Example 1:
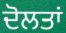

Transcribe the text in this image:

ਦੋਲਤਾਂ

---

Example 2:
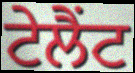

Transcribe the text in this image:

ਟੇਲੈਂਟ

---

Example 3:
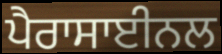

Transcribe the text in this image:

ਪੈਰਾਸਾਈਨਲ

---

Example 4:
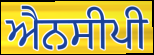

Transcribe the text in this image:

ਐਨਸੀਪੀ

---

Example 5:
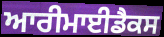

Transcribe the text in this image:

ਆਰੀਮਾਈਡੈਕਸ